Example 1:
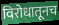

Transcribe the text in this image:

विरोधातूनच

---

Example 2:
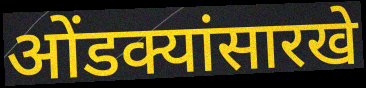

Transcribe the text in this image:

ओंडक्यांसारखे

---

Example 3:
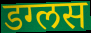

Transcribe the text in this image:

डग्लस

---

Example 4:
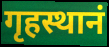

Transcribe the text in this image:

गृहस्थानं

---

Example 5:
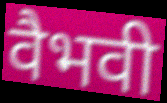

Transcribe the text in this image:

वैभवी